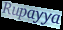
Rupayya